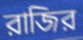
রাজির